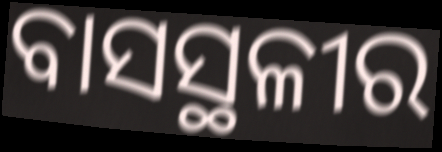
ବାସସ୍ଥଳୀର